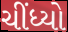
ચીંધ્યો